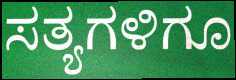
ಸತ್ಯಗಳಿಗೂ